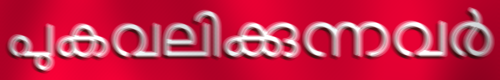
പുകവലിക്കുന്നവർ